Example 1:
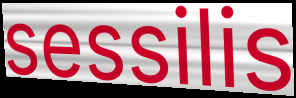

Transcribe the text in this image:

sessilis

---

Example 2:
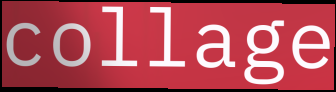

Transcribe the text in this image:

collage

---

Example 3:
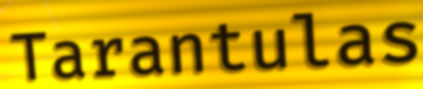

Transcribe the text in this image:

Tarantulas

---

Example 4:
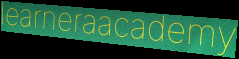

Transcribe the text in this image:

learneraacademy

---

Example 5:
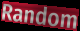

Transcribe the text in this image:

Random